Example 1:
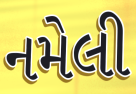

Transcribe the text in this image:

નમેલી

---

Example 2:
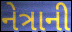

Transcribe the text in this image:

નેત્રાની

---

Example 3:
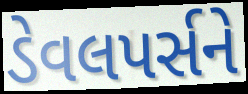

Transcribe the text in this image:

ડેવલપર્સને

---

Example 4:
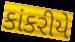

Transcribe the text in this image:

કાંકરીયે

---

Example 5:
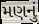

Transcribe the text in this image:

મણનું